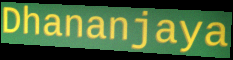
Dhananjaya